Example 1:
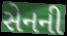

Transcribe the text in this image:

સેનની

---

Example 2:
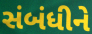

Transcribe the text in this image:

સંબંધીને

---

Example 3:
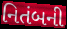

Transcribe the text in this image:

નિતંબની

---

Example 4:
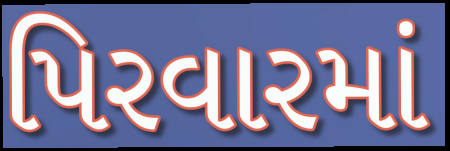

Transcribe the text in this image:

પિરવારમાં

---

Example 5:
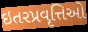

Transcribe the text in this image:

ઇતરપ્રવૃત્તિઓ